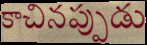
కాచినప్పుడు